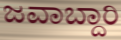
ಜವಾಬ್ದಾರಿ